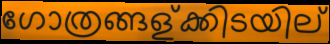
ഗോത്രങ്ങള്ക്കിടയില്